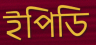
ইপিডি